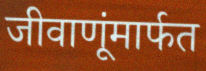
जीवाणूंमार्फत